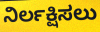
ನಿರ್ಲಕ್ಷಿಸಲು